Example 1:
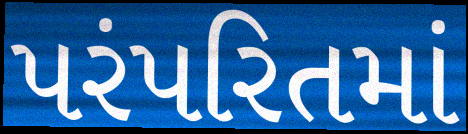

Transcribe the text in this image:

પરંપરિતમાં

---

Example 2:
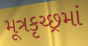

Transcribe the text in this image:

મૂત્રકૃચ્છ્રમાં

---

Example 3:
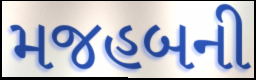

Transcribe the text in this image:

મજહબની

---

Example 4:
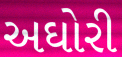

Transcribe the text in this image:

અઘોરી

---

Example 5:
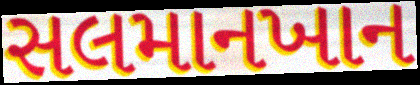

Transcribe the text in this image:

સલમાનખાન